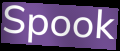
Spook